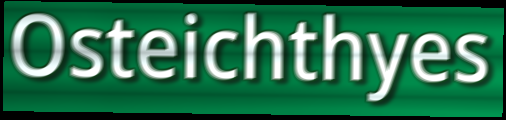
Osteichthyes